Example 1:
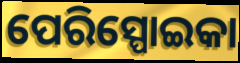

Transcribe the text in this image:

ପେରିସ୍ପୋଇକା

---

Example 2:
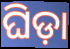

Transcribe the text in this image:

ଘିଡ଼ା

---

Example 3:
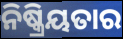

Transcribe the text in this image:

ନିଷ୍କ୍ରିୟତାର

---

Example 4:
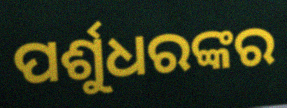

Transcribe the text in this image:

ପର୍ଶୁଧରଙ୍କର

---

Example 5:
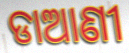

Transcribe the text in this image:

ଡାଆଣୀ